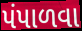
પંપાળવા